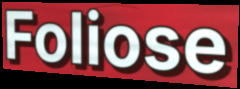
Foliose